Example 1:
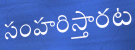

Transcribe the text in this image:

సంహరిస్తారట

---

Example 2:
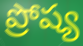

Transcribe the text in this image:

ప్రోష్య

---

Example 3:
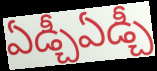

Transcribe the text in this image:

ఏడ్చీఏడ్చీ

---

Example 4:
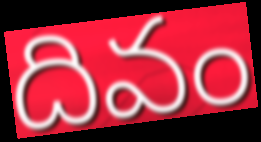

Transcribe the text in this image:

దివం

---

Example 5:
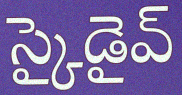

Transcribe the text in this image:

స్కైడైవ్